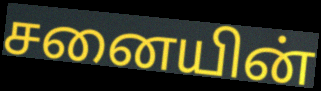
சனையின்